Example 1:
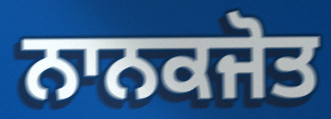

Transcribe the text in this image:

ਨਾਨਕਜੋਤ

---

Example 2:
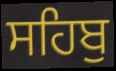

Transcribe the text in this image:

ਸਹਿਬੁ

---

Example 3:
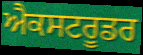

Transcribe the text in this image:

ਐਕਸਟਰੂਡਰ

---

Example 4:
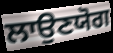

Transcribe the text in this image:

ਲਾਉਣਯੋਗ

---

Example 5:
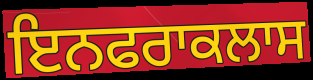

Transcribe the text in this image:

ਇਨਫਰਾਕਲਾਸ